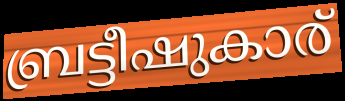
ബ്രട്ടീഷുകാര്